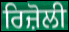
ਰਿਜ਼ੋਲੀ